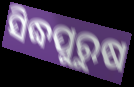
ସିଦ୍ଧପୁରୁଷ